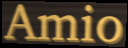
Amio